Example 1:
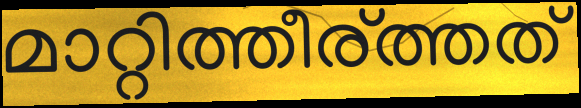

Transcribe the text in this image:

മാറ്റിത്തീര്ത്തത്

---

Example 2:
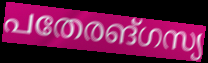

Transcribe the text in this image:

പതേരങ്ഗസ്യ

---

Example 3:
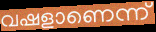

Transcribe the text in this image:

വഷളാണെന്ന്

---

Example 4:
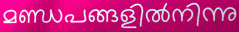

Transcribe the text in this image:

മണ്ഡപങ്ങളിൽനിന്നു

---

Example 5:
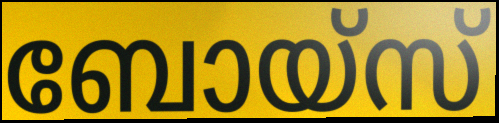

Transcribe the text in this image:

ബോയ്സ്